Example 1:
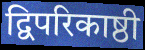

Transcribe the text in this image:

द्विपरिकाष्ठी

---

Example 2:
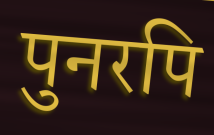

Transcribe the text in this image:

पुनरपि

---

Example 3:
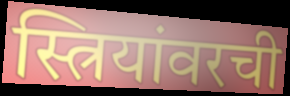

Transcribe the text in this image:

स्त्रियांवरची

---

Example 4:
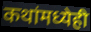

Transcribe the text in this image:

कथांमध्येही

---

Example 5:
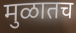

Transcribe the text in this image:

मुळातच